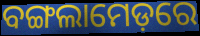
ବଙ୍ଗଲାମେଡ଼ରେ